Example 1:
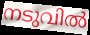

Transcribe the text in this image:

നടുവിൽ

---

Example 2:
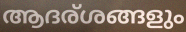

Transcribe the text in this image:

ആദര്ശങ്ങളും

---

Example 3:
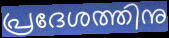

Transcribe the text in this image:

പ്രദേശത്തിനു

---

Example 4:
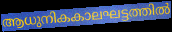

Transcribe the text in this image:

ആധുനികകാലഘട്ടത്തിൽ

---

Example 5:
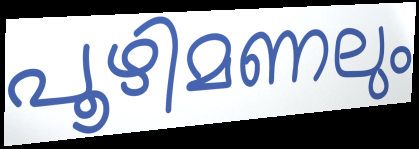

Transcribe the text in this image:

പൂഴിമണലും